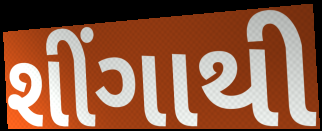
શીંગાથી